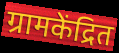
ग्रामकेंद्रित